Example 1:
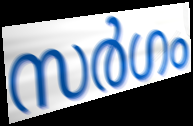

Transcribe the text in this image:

സർഗം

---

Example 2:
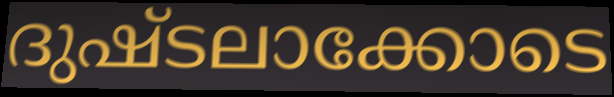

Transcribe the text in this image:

ദുഷ്ടലാക്കോടെ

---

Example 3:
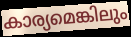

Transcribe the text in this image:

കാര്യമെങ്കിലും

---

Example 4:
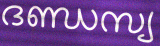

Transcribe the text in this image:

ദണ്ഡസ്യ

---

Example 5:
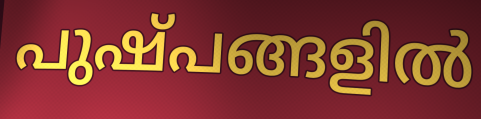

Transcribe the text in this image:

പുഷ്പങ്ങളിൽ